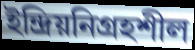
ইন্দ্রিয়নিগ্রহশীল